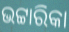
ଭଟ୍ଟାରିକା